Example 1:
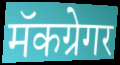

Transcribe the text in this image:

मॅकग्रेगर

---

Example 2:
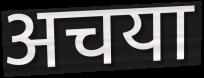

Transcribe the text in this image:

अचया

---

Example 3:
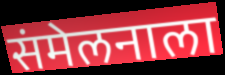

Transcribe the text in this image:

संमेलनाला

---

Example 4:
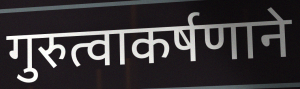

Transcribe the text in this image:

गुरुत्वाकर्षणाने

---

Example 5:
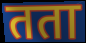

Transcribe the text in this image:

तता